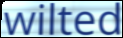
wilted